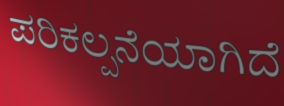
ಪರಿಕಲ್ಪನೆಯಾಗಿದೆ